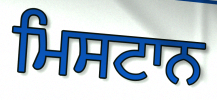
ਮਿਸਟਾਨ